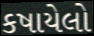
કષાયેલો